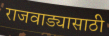
राजवाड्यासाठी